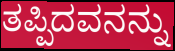
ತಪ್ಪಿದವನನ್ನು